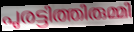
പുരട്ടിത്തിരുമ്മി